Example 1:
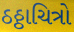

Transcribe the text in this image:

ઠઠ્ઠાચિત્રો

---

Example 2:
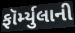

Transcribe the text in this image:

ફૉર્મ્યુલાની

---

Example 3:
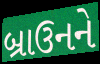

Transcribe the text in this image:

બ્રાઉનને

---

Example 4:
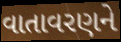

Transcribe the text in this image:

વાતાવરણને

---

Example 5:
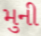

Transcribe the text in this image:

મુની